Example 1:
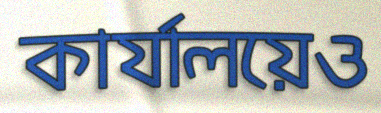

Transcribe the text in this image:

কার্যালয়েও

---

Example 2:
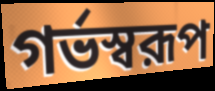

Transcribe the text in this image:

গর্ভস্বরূপ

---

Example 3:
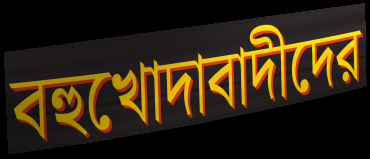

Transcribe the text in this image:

বহুখোদাবাদীদের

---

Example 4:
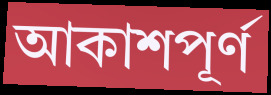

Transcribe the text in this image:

আকাশপূর্ণ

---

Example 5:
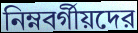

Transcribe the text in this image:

নিম্নবর্গীয়দের